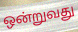
ஒன்றுவது